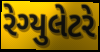
રેગ્યુલેટરે